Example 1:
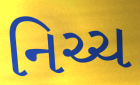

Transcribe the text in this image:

નિચ્ચ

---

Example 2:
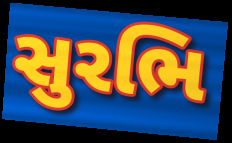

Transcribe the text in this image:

સુરભિ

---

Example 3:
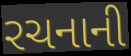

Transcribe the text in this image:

રચનાની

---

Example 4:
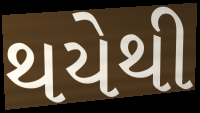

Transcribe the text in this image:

થયેથી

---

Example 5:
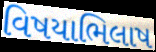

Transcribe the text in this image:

વિષયાભિલાષ